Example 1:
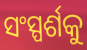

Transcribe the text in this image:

ସଂସ୍ପର୍ଶକୁ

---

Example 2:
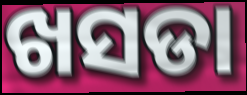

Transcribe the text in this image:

ଖସଡା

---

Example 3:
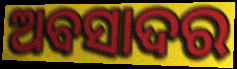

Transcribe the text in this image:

ଅବସାଦର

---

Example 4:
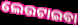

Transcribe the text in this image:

ଲେଉଟାଇବା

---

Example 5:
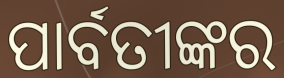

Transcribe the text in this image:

ପାର୍ବତୀଙ୍କର